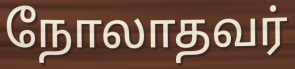
நோலாதவர்